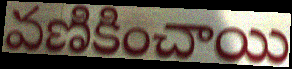
వణికించాయి